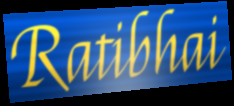
Ratibhai